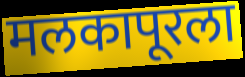
मलकापूरला